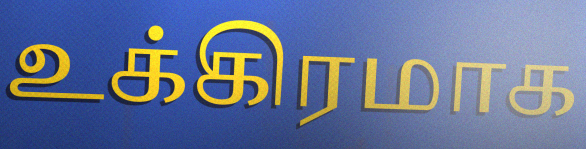
உக்கிரமாக